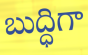
బుద్ధిగా